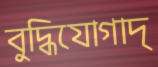
বুদ্ধিযোগাদ্